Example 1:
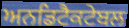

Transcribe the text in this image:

ਅਨਡਿਟੈਕਟੇਬਲ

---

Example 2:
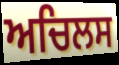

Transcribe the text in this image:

ਅਚਿਲਸ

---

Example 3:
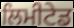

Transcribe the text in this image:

ਲਿਮੀਟੇਡ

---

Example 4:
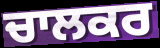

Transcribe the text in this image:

ਚਾਲਕਰ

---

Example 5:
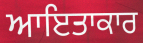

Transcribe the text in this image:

ਆਇਤਾਕਾਰ